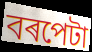
বৰপেটা